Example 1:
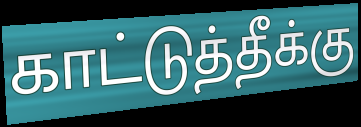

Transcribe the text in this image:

காட்டுத்தீக்கு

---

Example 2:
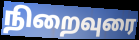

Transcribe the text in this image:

நிறைவுரை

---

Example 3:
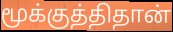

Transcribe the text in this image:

மூக்குத்திதான்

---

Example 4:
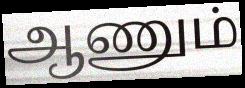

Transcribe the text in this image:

ஆணும்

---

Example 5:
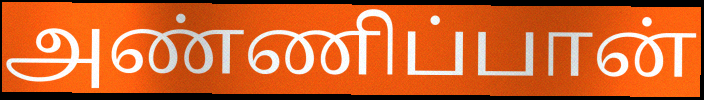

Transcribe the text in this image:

அண்ணிப்பான்